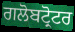
ਗਲੋਬਟ੍ਰੋਟਰ